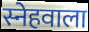
स्नेहवाला